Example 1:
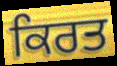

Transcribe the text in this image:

ਕਿਰਤ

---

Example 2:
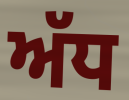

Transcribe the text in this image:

ਅੱਧ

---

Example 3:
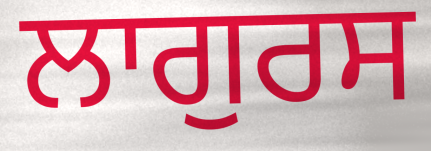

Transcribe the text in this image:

ਲਾਗੁਰਸ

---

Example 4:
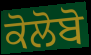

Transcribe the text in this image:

ਕੋਲੋਬੋ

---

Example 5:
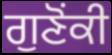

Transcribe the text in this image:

ਗੁਣੋਂਕੀ